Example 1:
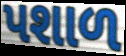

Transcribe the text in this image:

પશાળ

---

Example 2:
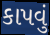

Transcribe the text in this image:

કાપવું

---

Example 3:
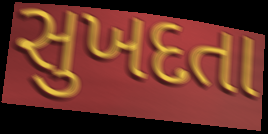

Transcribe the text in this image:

સુખદતા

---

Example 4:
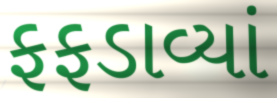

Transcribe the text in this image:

ફફડાવ્યાં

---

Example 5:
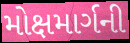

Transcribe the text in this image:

મોક્ષમાર્ગની